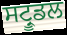
ਸਟ੍ਰੂਡਲ